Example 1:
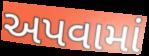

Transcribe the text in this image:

અપવામાં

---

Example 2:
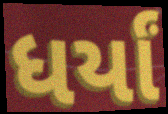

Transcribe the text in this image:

ધર્યાં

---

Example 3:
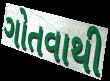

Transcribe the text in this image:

ગોતવાથી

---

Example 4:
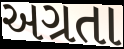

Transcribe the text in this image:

અગ્રતા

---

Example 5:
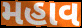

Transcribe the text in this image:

મહાવ